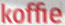
koffie